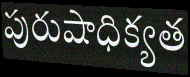
పురుషాధిక్యత